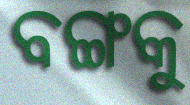
ବଙ୍ଗକୁ